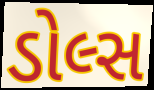
ડોલ્સ